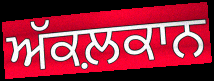
ਅੱਕਲ਼ਕਾਨ